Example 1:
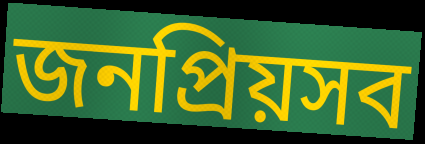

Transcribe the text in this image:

জনপ্রিয়সব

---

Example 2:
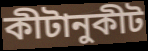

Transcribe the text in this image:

কীটানুকীট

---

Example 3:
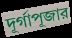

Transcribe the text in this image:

দূর্গাপূজার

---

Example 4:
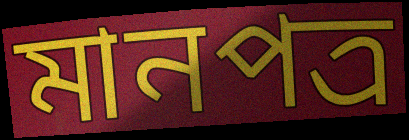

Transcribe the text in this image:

মানপত্র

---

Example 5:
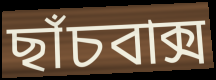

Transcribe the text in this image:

ছাঁচবাক্স